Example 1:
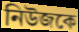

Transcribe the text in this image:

নিউজকে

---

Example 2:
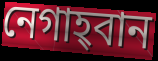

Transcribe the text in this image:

নেগাহ্‌বান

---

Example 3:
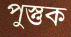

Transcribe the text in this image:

পুস্তুক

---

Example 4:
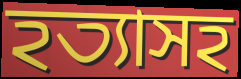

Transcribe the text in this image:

হত্যাসহ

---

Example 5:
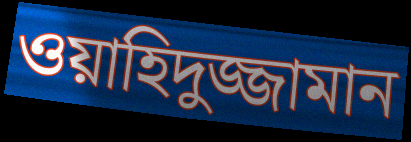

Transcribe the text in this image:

ওয়াহিদুজ্জামান